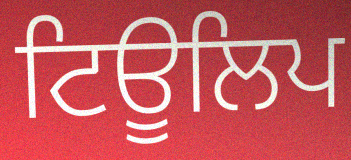
ਟਿਊਲਿਪ